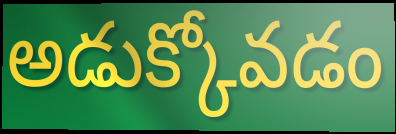
అడుక్కోవడం